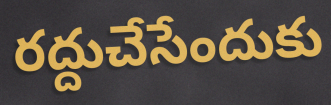
రద్దుచేసేందుకు